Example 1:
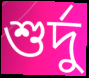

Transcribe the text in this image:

শুর্দু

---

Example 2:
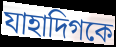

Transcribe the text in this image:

যাহাদিগকে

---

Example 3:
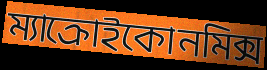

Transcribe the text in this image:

ম্যাক্রোইকোনমিক্স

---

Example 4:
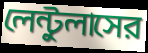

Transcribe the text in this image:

লেন্টুলাসের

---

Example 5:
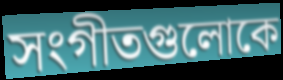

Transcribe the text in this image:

সংগীতগুলোকে